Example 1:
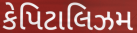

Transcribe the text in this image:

કેપિટાલિઝમ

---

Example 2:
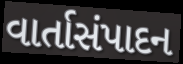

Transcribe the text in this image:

વાર્તાસંપાદન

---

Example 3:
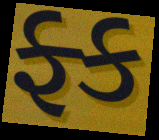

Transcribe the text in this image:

ફ્ક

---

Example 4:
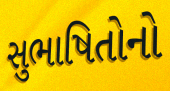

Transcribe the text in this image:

સુભાષિતોનો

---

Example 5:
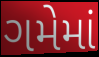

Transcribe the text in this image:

ગમેમાં